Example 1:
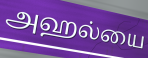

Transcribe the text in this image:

அஹல்யை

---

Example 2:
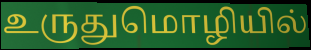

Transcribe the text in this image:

உருதுமொழியில்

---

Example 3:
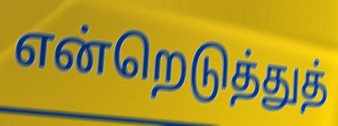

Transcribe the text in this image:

என்றெடுத்துத்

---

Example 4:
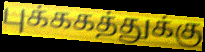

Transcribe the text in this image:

புக்ககத்துக்கு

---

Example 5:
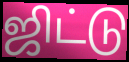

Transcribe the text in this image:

ஜிட்டு